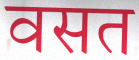
वसत